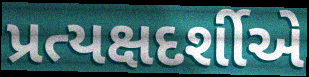
પ્રત્યક્ષદર્શીએ